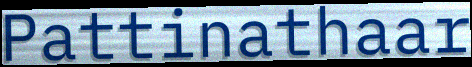
Pattinathaar